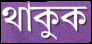
থাকুক